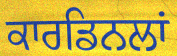
ਕਾਰਡਿਨਲਾਂ